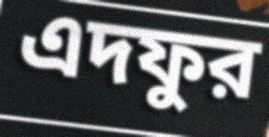
এদফুর